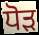
ਧੋੜ